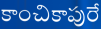
కాంచికాపురే